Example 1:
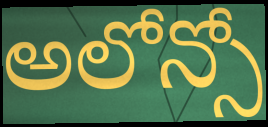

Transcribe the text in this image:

అలోన్సో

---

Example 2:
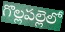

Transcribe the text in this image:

గొల్లపల్లెలో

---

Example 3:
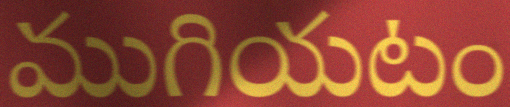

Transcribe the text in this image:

ముగియటం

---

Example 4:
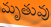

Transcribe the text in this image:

మృతువు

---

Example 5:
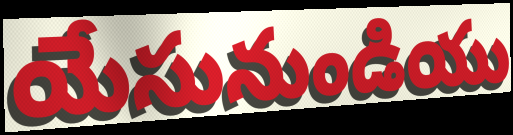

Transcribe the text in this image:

యేసునుండియు